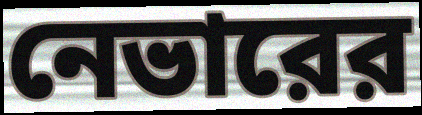
নেভারের